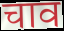
चाव